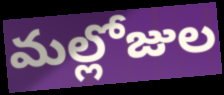
మల్లోజుల